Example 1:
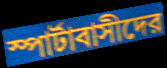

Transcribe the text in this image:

স্পার্টাবাসীদের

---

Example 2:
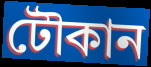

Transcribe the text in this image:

টৌকান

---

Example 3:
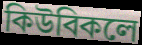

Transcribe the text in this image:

কিউবিকলে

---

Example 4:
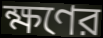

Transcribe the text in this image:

ক্ষণের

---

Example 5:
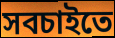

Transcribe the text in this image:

সবচাইতে